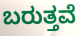
ಬರುತ್ತವೆ